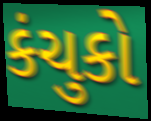
કંચુકો